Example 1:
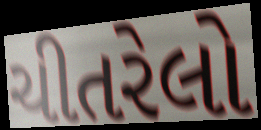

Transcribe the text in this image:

ચીતરેલો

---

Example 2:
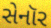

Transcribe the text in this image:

સેનૉર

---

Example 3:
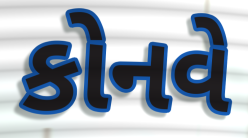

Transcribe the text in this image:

કોનવે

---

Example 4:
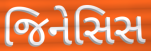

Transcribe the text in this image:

જિનેસિસ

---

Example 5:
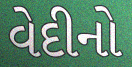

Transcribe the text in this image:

વેદીનો